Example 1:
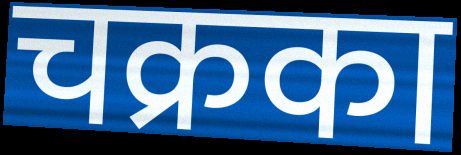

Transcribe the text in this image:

चक्रका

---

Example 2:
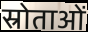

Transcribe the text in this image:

स्रोताओं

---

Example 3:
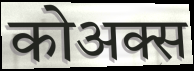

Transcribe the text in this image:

कोअक्स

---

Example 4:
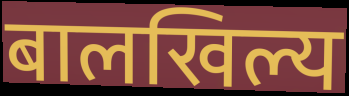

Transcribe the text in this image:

बालखिल्य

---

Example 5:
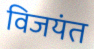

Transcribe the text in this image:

विजयंत